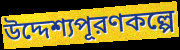
উদ্দেশ্যপূরণকল্পে